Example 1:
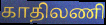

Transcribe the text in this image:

காதிலணி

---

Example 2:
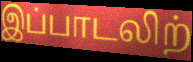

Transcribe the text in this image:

இப்பாடலிற்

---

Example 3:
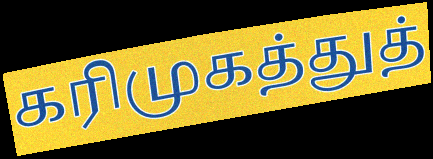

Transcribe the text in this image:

கரிமுகத்துத்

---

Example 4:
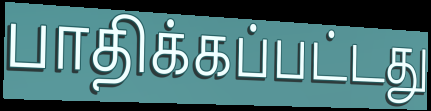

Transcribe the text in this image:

பாதிக்கப்பட்டது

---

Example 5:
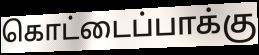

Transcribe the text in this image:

கொட்டைப்பாக்கு